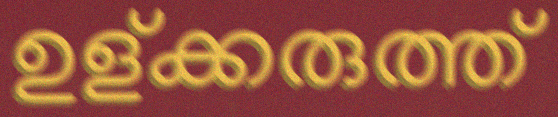
ഉള്ക്കരുത്ത്